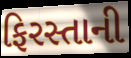
ફિરસ્તાની